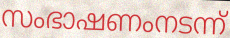
സംഭാഷണംനടന്ന്